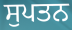
ਸੁਪਤਨ